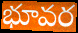
భూవర